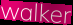
walker